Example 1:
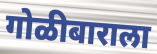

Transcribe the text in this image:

गोळीबाराला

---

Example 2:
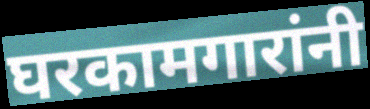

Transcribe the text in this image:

घरकामगारांनी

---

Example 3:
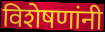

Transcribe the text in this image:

विशेषणांनी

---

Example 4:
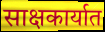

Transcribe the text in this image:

साक्षकार्यात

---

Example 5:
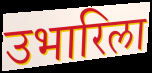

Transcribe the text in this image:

उभारिला